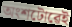
অংশটোৱেই